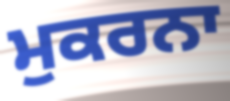
ਮੁਕਰਨਾ